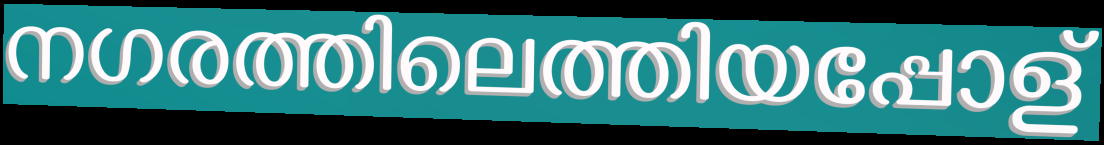
നഗരത്തിലെത്തിയപ്പോള്